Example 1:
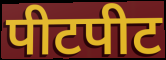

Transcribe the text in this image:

पीटपीट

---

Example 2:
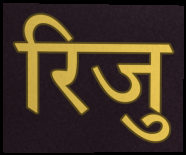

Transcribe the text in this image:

रिजु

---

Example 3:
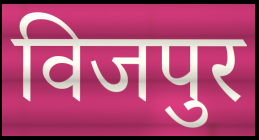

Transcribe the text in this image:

विजपुर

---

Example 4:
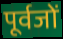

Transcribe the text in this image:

पूर्वजों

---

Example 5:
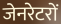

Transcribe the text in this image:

जेनरेटरों